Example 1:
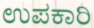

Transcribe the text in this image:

ಉಪಕಾರಿ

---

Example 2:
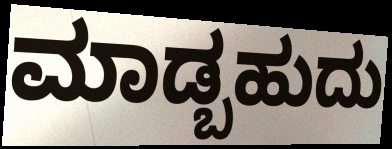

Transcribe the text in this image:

ಮಾಡ್ಬಹುದು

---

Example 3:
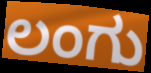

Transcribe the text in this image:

ಲಂಗು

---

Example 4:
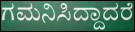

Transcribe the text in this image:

ಗಮನಿಸಿದ್ದಾದರೆ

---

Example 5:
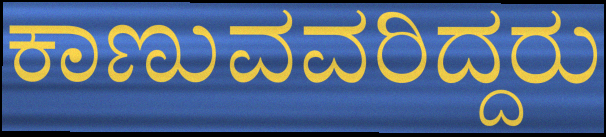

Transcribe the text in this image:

ಕಾಣುವವರಿದ್ದರು